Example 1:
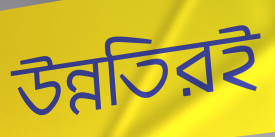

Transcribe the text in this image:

উন্নতিরই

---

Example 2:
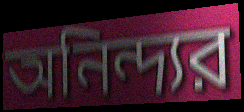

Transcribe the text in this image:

অনিন্দ্যর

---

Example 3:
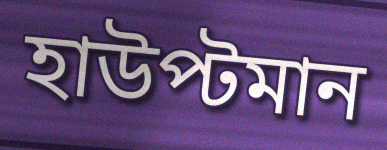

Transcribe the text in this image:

হাউপ্টমান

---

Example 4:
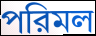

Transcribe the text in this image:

পরিমল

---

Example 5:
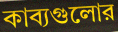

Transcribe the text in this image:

কাব্যগুলোর